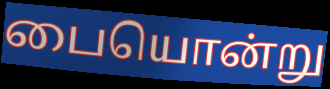
பையொன்று